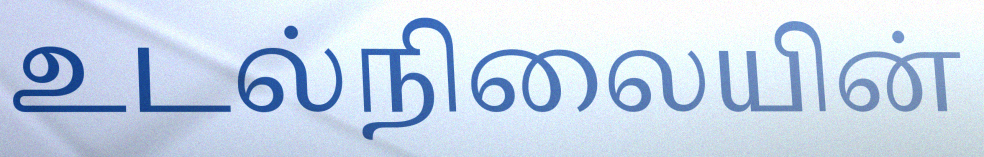
உடல்நிலையின்